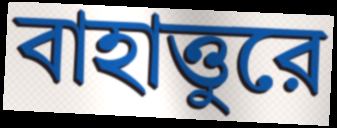
বাহাত্তুরে